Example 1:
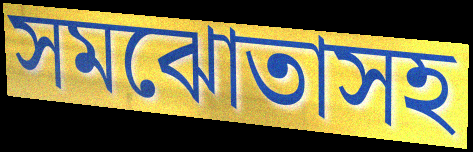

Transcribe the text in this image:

সমঝোতাসহ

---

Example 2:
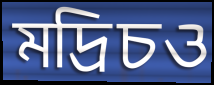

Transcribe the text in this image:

মদ্রিচও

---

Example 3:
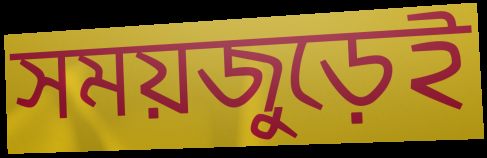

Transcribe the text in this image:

সময়জুড়েই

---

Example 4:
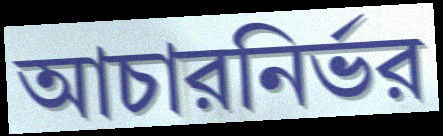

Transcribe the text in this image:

আচারনির্ভর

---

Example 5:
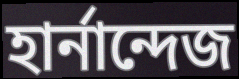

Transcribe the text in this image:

হার্নান্দেজ